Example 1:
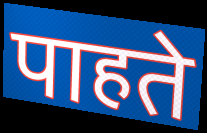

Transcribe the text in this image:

पाहते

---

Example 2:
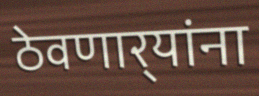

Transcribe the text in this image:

ठेवणार्‍यांना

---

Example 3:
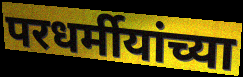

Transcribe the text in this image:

परधर्मीयांच्या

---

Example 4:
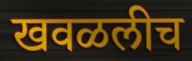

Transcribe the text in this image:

खवळलीच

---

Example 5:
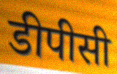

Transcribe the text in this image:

डीपीसी